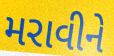
મરાવીને